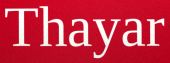
Thayar